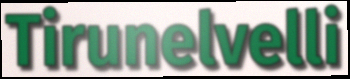
Tirunelvelli